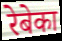
रेबेका